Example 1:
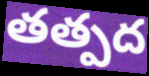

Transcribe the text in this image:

తత్పద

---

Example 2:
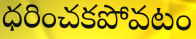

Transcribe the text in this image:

ధరించకపోవటం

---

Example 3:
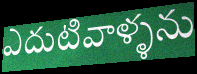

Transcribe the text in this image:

ఎదుటివాళ్ళను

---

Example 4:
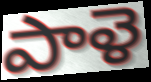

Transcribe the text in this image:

పాళె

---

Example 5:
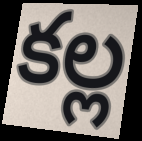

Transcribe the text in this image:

కల్ల